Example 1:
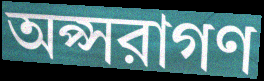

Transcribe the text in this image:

অপ্সরাগণ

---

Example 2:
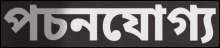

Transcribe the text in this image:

পচনযোগ্য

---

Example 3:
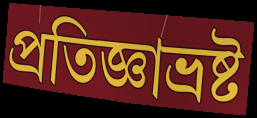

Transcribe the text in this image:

প্রতিজ্ঞাভ্রষ্ট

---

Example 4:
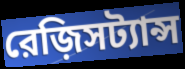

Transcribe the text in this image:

রেজ়িসট্যান্স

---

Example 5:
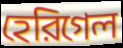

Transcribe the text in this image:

হেরিগেল